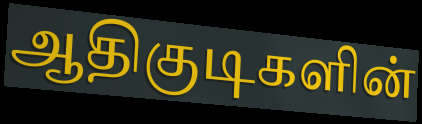
ஆதிகுடிகளின்